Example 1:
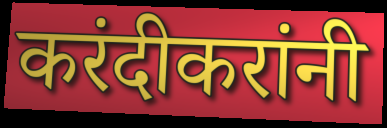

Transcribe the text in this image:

करंदीकरांनी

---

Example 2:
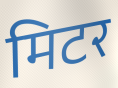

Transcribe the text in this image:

मिटर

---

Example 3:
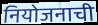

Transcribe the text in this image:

नियोजनाची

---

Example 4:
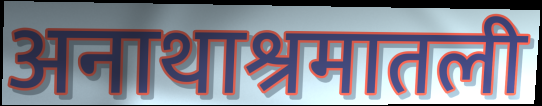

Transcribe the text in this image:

अनाथाश्रमातली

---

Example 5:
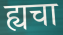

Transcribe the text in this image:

ह्यचा